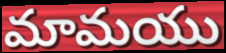
మామయు